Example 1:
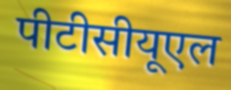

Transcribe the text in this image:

पीटीसीयूएल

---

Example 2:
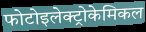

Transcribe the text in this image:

फोटोइलेक्ट्रोकेमिकल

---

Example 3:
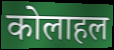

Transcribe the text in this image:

कोलाहल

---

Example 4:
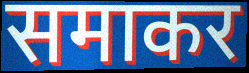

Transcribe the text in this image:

समाकर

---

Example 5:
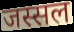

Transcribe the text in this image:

जस्सल